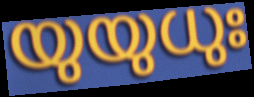
യുയുധുഃ